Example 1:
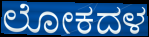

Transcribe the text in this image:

ಲೋಕದಳ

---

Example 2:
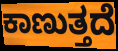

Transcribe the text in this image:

ಕಾಣುತ್ತದೆ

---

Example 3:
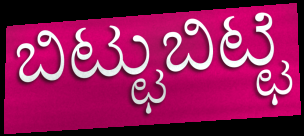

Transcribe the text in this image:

ಬಿಟ್ಟುಬಿಟ್ಟೆ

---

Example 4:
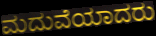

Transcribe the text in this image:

ಮದುವೆಯಾದರು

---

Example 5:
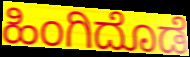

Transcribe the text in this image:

ಹಿಂಗಿದೊಡೆ